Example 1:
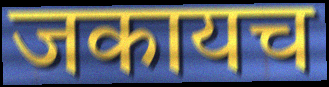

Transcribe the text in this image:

जकायच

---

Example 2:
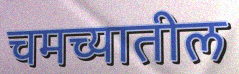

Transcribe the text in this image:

चमच्यातील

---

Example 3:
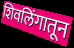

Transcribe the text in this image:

शिवलिंगातून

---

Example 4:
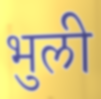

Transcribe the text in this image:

भुली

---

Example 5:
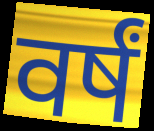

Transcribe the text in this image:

वर्षं